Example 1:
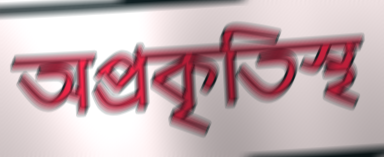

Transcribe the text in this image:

অপ্রকৃতিস্থ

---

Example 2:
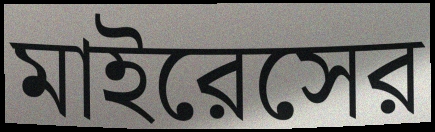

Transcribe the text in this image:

মাইরেসের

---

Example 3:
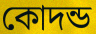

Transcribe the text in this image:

কোদন্ড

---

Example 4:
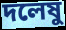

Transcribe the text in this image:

দলেষু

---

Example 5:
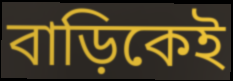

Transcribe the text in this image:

বাড়িকেই